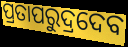
ପ୍ରତାପରୁଦ୍ରଦେବ